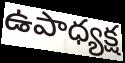
ఉపాధ్యక్ష